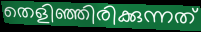
തെളിഞ്ഞിരിക്കുന്നത്